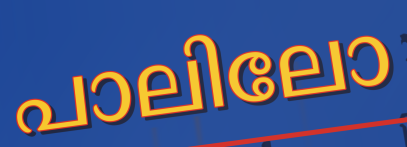
പാലിലോ